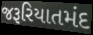
જરૂરિયાતમંદ